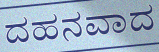
ದಹನವಾದ